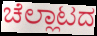
ಚೆಲ್ಲಾಟದ